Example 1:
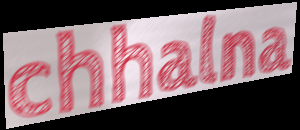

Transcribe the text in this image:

chhalna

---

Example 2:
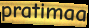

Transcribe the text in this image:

pratimaa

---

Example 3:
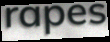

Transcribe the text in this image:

rapes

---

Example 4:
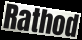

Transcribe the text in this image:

Rathod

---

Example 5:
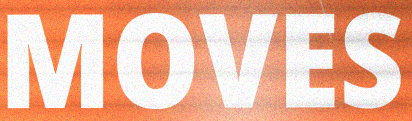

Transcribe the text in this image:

MOVES